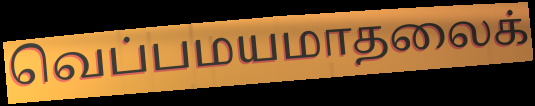
வெப்பமயமாதலைக்